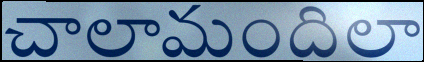
చాలామందిలా